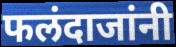
फलंदाजांनी